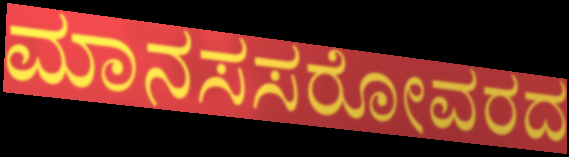
ಮಾನಸಸರೋವರದ